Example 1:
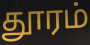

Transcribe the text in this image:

தூரம்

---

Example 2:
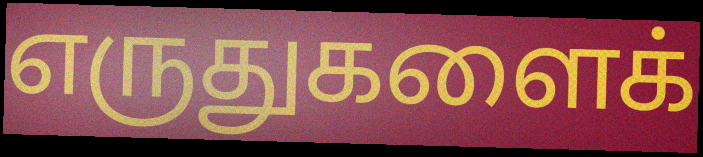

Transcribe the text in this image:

எருதுகளைக்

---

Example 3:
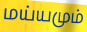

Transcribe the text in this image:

மய்யமும்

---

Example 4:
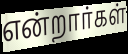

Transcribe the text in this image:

என்றார்கள்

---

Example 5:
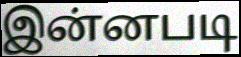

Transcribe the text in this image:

இன்னபடி